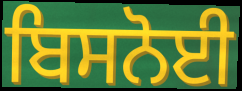
ਬਿਸਨੋਈ